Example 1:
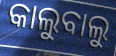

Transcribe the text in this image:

କାଲୁବାଲୁ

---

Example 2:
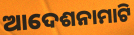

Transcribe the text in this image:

ଆଦେଶନାମାଟି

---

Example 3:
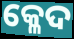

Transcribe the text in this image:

କ୍ଳେଦ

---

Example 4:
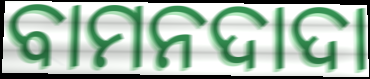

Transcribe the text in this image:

ବାମନଦାଦା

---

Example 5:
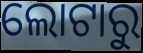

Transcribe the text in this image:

ଲୋଟାରୁ